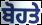
ਬੋਹਤੇ